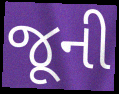
જૂની